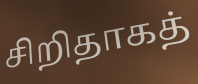
சிறிதாகத்